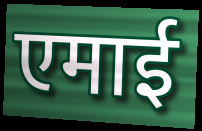
एमाई